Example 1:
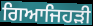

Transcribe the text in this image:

ਗਿਆਜਿਹੜੀ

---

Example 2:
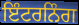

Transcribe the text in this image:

ਇੰਟਰਨਿੰਗ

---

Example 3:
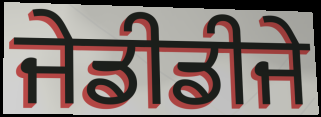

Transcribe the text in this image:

ਜੇਡੀਡੀਜੇ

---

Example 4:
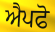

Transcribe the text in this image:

ਐਪਫੋ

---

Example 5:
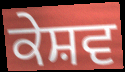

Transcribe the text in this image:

ਕੇਸ਼ਵ